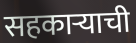
सहकाऱ्याची